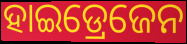
ହାଇଡ୍ରେଜେନ